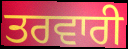
ਤਰਵਾਰੀ